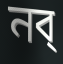
নব্